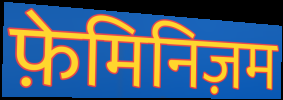
फ़ेमिनिज़म